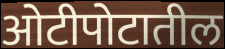
ओटीपोटातील